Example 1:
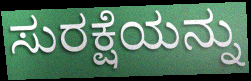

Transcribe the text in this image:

ಸುರಕ್ಷೆಯನ್ನು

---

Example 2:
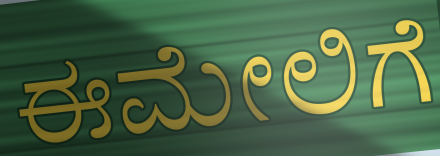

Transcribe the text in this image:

ಈಮೇಲಿಗೆ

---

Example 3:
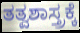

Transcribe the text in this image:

ತತ್ವಶಾಸ್ತ್ರಕ್ಕೆ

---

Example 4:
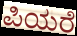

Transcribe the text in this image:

ಪಿಯರೆ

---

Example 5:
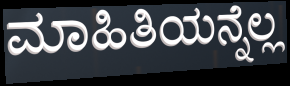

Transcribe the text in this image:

ಮಾಹಿತಿಯನ್ನೆಲ್ಲ